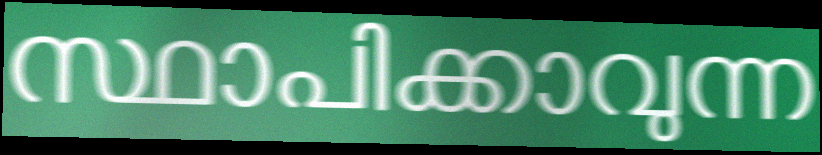
സ്ഥാപിക്കാവുന്ന